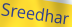
Sreedhar